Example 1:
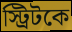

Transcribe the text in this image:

স্ট্রিটকে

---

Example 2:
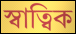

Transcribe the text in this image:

স্বাত্বিক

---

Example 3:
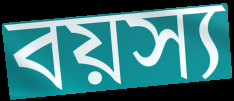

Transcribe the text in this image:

বয়স্য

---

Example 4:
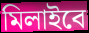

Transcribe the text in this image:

মিলাইবে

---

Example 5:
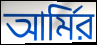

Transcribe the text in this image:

আর্মির